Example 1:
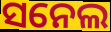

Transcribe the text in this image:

ସନେଲ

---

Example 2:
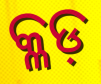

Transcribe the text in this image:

କ୍ଳଡ଼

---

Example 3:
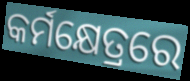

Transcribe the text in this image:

କର୍ମକ୍ଷେତ୍ରରେ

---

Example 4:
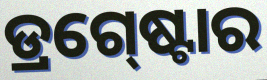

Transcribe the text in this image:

ଡ୍ରଗ୍‍ଷ୍ଟୋର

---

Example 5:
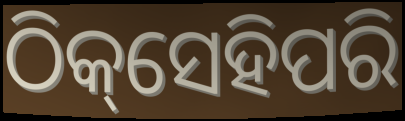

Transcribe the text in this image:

ଠିକ୍‌ସେହିପରି